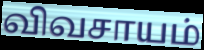
விவசாயம்